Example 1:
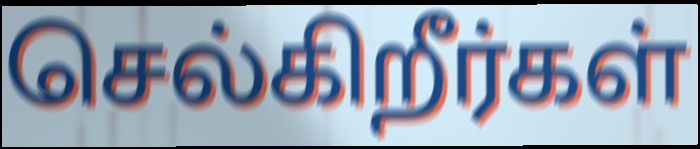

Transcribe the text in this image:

செல்கிறீர்கள்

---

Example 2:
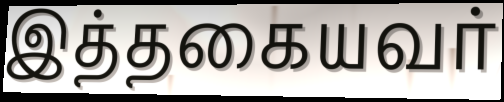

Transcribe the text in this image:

இத்தகையவர்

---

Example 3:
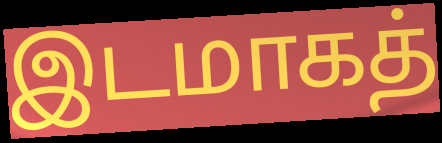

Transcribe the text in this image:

இடமாகத்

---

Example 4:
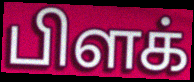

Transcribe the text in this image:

பிளக்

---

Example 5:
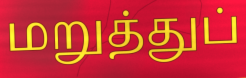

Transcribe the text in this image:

மறுத்துப்